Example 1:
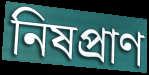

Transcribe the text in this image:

নিষপ্রাণ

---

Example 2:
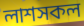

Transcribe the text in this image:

লাশসকল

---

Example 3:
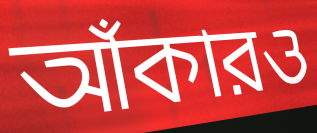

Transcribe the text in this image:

আঁকারও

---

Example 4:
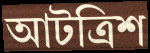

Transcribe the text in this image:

আটত্রিশ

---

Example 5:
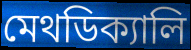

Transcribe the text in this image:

মেথডিক্যালি